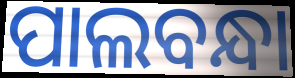
ପାଲବନ୍ଧା